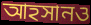
আহসানও